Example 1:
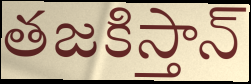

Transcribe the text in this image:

తజకిస్తాన్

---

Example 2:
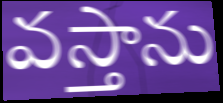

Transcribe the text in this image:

వస్తాను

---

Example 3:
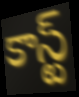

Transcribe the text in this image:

కాస్ట్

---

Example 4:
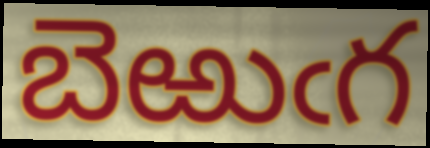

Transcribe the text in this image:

బెఱుఁగ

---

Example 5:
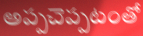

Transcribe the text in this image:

అప్పచెప్పటంతో